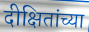
दीक्षितांच्या